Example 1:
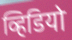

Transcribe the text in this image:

व्हिडियो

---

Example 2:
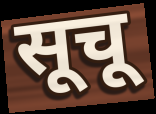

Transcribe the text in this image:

सूचू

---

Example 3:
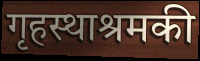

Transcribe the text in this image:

गृहस्थाश्रमकी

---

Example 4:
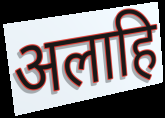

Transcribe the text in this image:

अलाहि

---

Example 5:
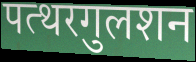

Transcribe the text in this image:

पत्थरगुलशन